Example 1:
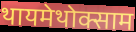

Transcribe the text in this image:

थायमेथोक्साम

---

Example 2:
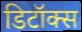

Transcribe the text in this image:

डिटॉक्स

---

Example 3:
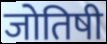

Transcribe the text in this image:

जोतिषी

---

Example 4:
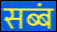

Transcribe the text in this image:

सब्बं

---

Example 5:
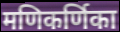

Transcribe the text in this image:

मणिकर्णिका